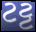
ટટ્ટ